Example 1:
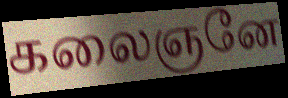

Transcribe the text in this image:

கலைஞனே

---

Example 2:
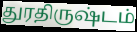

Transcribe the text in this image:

துரதிருஷ்டம்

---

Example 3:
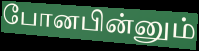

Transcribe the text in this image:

போனபின்னும்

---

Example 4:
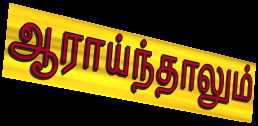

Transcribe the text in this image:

ஆராய்ந்தாலும்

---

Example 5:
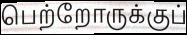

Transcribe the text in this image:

பெற்றோருக்குப்